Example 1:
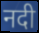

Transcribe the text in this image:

नदी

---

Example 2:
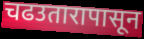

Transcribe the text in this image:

चढउतारापासून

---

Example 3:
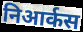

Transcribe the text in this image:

निआर्कस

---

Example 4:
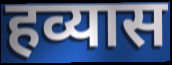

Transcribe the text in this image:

हव्यास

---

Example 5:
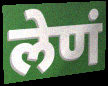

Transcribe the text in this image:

लेणं